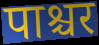
पाश्चर